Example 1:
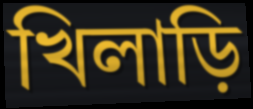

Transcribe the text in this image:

খিলাড়ি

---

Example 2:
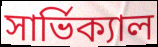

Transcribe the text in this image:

সার্ভিক্যাল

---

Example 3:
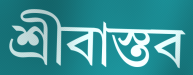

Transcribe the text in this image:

শ্রীবাস্তব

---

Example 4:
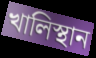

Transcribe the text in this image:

খালিস্থান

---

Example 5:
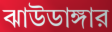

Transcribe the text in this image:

ঝাউডাঙ্গার